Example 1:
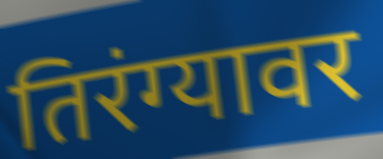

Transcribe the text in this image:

तिरंग्यावर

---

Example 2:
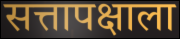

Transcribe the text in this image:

सत्तापक्षाला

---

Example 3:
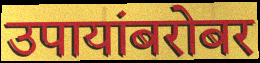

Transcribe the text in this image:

उपायांबरोबर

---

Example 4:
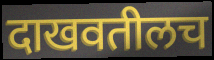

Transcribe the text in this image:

दाखवतीलच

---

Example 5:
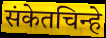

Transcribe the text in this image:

संकेतचिन्हे